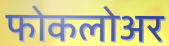
फोकलोअर